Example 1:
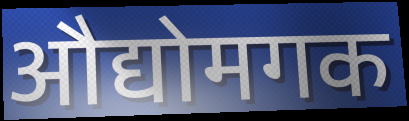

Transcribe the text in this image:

औद्योमगक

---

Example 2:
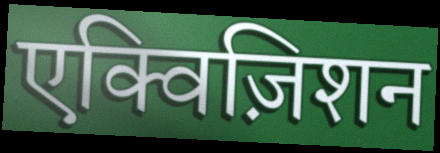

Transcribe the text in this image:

एक्विज़िशन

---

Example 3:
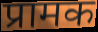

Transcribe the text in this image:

प्रामक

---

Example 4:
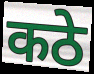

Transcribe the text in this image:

कठे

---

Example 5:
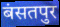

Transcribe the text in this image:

बंसतपुर